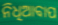
ନିଧିଆବାପ